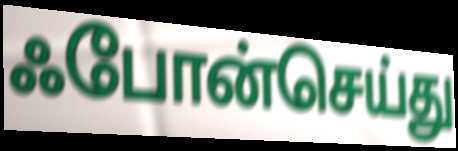
ஃபோன்செய்து